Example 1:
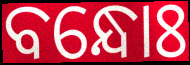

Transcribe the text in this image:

ବନ୍ଧୋଃ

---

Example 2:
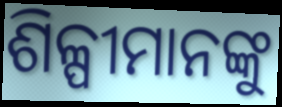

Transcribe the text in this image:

ଶିଳ୍ପୀମାନଙ୍କୁ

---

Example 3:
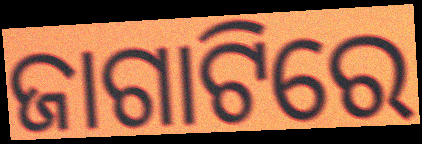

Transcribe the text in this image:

ଜାଗାଟିରେ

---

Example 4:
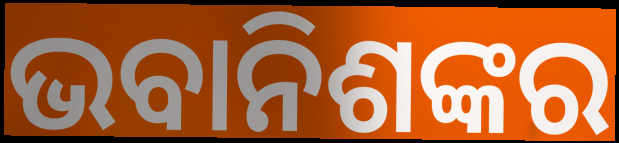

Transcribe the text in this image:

ଭବାନିଶଙ୍କର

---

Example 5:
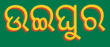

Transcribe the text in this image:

ଉଇଘୁର